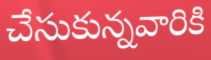
చేసుకున్నవారికి